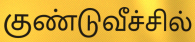
குண்டுவீச்சில்